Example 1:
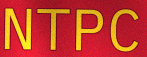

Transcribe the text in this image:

NTPC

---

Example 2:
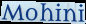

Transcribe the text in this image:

Mohini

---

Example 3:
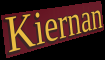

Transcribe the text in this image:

Kiernan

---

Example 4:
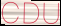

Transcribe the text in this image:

CDU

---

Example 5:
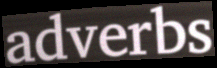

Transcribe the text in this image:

adverbs